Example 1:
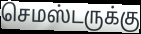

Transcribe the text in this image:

செமஸ்டருக்கு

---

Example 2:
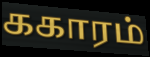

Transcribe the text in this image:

ககாரம்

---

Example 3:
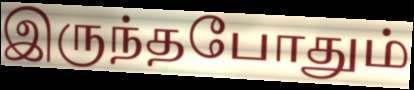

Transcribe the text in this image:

இருந்தபோதும்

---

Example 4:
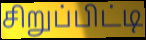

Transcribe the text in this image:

சிறுப்பிட்டி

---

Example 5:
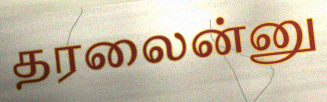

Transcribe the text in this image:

தரலைன்னு